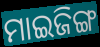
ମାଇଜିଙ୍ଗ